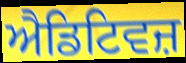
ਐਡਿਟਿਵਜ਼